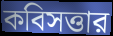
কবিসত্তার